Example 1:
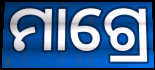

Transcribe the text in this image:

ମାଗ୍ରେ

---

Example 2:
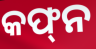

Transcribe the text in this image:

କଫ୍‌ନ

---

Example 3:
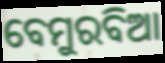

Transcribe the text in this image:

ବେମୁରବିଆ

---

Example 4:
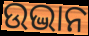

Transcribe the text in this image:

ଉଦ୍ଭାନ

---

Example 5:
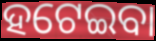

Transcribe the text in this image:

ହଟେଇବା